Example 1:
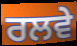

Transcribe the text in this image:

ਰਲਵੇ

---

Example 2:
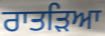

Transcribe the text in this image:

ਰਾਤੜਿਆ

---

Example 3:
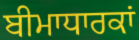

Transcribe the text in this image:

ਬੀਮਾਧਾਰਕਾਂ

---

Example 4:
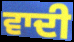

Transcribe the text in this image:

ਵਾਦੀ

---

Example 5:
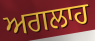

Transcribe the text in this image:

ਅਗਲਾਹ